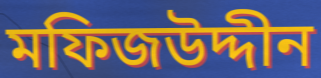
মফিজউদ্দীন